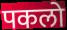
पकलो